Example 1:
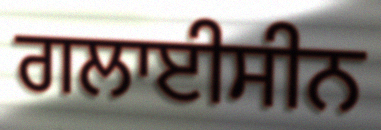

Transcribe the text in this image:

ਗਲਾਈਸੀਨ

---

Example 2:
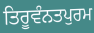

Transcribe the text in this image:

ਤਿਰੂਵੰਨਤਪੁਰਮ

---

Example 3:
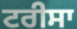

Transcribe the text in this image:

ਟਰੀਸਾ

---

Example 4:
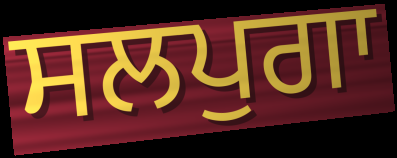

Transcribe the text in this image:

ਸਲਪੁਗਾ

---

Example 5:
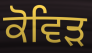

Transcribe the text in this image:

ਕੋਵਿਡ਼